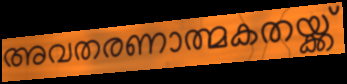
അവതരണാത്മകതയ്ക്ക്